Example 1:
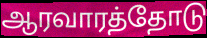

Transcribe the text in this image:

ஆரவாரத்தோடு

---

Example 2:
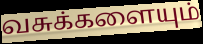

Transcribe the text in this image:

வசுக்களையும்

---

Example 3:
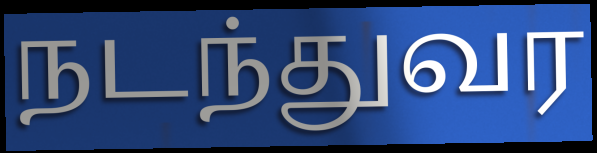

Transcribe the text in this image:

நடந்துவர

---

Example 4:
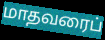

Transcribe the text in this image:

மாதவரைப்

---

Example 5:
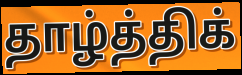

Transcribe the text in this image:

தாழ்த்திக்